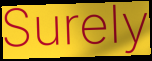
Surely